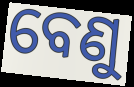
ବେଣୁ